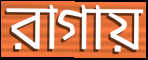
রাগায়